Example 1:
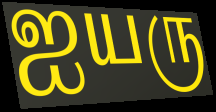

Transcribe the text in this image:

ஐயரு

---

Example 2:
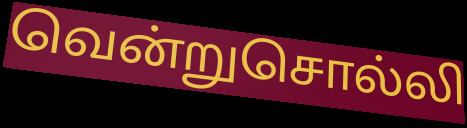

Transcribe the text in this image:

வென்றுசொல்லி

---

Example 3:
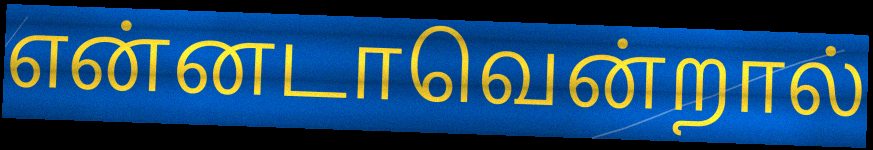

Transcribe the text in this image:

என்னடாவென்றால்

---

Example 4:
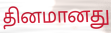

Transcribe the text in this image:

தினமானது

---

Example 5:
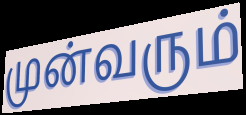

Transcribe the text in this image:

முன்வரும்